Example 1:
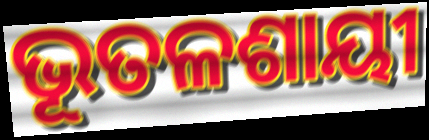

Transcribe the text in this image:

ଭୂତଳଶାୟୀ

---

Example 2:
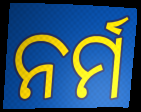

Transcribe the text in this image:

ନର୍ମ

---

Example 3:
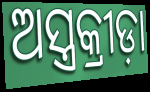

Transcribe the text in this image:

ଅସ୍ତ୍ରକ୍ରୀଡ଼ା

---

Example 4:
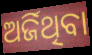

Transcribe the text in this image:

ଅର୍ଜିଥିବା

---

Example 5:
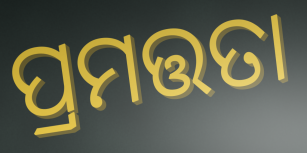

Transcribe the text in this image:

ପ୍ରମତ୍ତତା